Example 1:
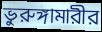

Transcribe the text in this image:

ভুরুঙ্গামারীর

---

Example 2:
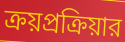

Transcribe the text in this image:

ক্রয়প্রক্রিয়ার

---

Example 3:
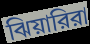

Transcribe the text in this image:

ঝিয়ারিরা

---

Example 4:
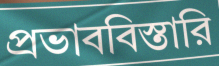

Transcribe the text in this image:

প্রভাববিস্তারি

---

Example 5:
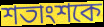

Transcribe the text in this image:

শতাংশকে